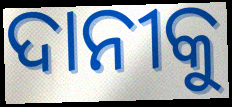
ଦାନୀକୁ